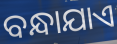
ବନ୍ଧାଯାଏ